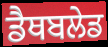
ਡੈਥਬਲੇਡ